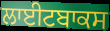
ਲਾਈਟਬਾਕਸ